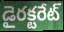
డైరక్టరేట్